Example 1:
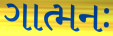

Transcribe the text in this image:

ગાત્મનઃ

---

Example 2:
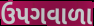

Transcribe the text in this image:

ઉપગવાળા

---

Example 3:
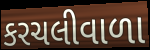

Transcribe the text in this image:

કરચલીવાળા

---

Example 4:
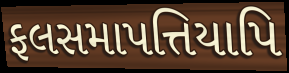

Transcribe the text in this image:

ફલસમાપત્તિયાપિ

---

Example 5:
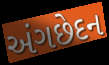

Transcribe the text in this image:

અંગછેદન